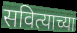
सवित्याच्या